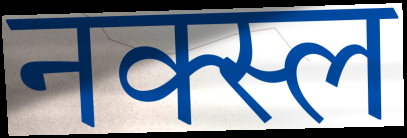
नक्स्ल